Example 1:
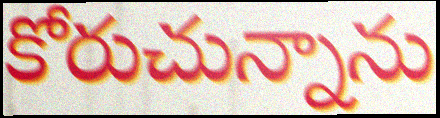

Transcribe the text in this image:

కోరుచున్నాను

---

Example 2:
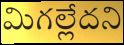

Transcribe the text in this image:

మిగల్లేదని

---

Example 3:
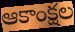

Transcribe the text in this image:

ఆకాంక్షల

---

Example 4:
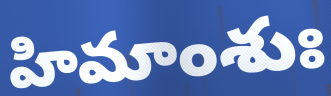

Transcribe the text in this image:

హిమాంశుః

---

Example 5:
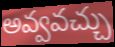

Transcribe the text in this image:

అవ్వవచ్చు